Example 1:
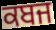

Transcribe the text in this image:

ਕਬਜ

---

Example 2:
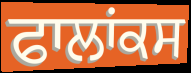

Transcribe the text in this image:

ਫਾਲਾਂਕਸ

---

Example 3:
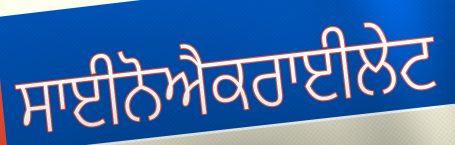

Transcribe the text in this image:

ਸਾਈਨੋਐਕਰਾਈਲੇਟ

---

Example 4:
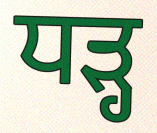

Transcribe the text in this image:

ਧੜ੍ਹ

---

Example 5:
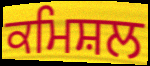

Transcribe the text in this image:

ਕਮਿਸ਼ਲ